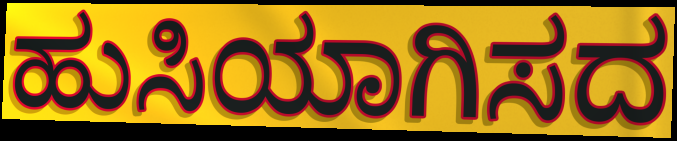
ಹುಸಿಯಾಗಿಸದ